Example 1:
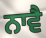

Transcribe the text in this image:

ਨਾਵੈ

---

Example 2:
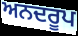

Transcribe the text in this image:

ਅਨਦਰੂਪ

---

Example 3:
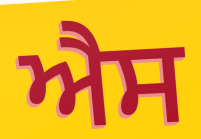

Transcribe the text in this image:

ਐੈਸ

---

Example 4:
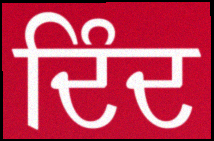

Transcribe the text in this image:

ਦਿੰਦ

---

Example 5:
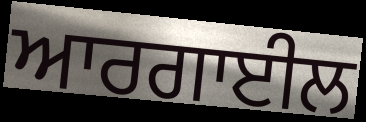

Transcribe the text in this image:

ਆਰਗਾਈਲ